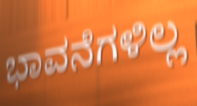
ಭಾವನೆಗಳಿಲ್ಲ